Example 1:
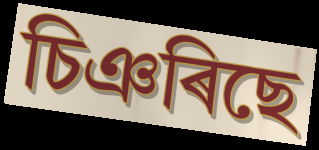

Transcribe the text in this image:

চিঞৰিছে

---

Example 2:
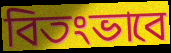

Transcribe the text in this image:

বিতংভাবে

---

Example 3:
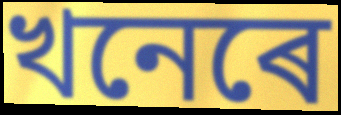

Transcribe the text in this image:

খনেৰে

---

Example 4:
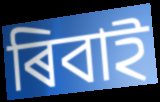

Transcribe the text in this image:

ৰিবাই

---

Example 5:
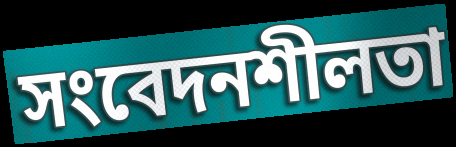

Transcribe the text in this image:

সংবেদনশীলতা